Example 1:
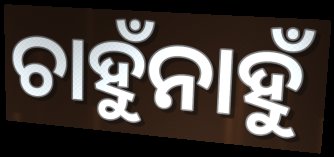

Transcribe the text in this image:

ଚାହୁଁନାହୁଁ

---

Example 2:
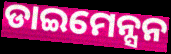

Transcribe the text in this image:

ଡାଇମେନ୍ସନ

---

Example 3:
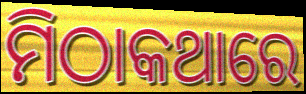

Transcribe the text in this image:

ମିଠାକଥାରେ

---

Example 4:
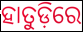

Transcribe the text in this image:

ହାତୁଡ଼ିରେ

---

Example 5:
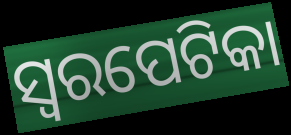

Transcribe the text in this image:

ସ୍ୱରପେଟିକା